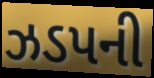
ઝડપની